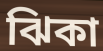
ঝিকা